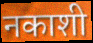
नकाशी